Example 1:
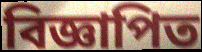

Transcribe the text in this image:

বিজ্ঞাপিত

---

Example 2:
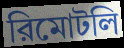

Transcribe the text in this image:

রিমোটলি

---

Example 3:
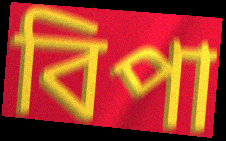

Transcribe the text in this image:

বিপা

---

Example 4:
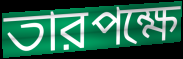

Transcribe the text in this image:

তারপক্ষে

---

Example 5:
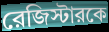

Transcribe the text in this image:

রেজিস্টারকে